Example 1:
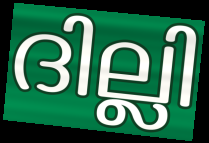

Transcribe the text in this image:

ദില്ലി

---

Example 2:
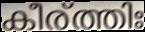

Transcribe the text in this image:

കീര്ത്തിഃ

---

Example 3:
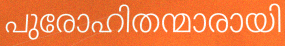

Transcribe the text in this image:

പുരോഹിതന്മാരായി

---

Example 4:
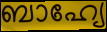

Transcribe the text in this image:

ബാഹ്യേ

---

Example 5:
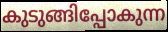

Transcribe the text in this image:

കുടുങ്ങിപ്പോകുന്ന